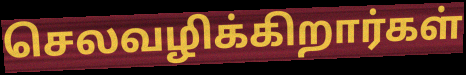
செலவழிக்கிறார்கள்